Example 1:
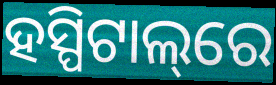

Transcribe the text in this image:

ହସ୍ପିଟାଲ୍‌ରେ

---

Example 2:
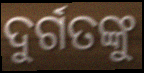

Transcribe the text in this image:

ଦୁର୍ଗତଙ୍କୁ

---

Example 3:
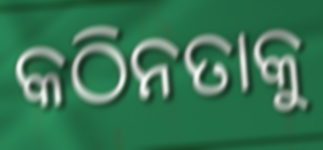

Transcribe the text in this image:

କଠିନତାକୁ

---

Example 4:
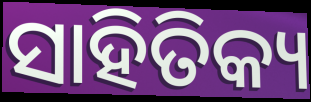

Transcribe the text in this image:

ସାହିତିକ୍ୟ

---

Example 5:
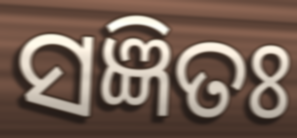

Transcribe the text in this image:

ସଜ୍ଞିତଃ